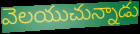
వెలయుచున్నాడు